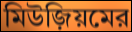
মিউজ়িয়মের